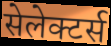
सेलेक्टर्स